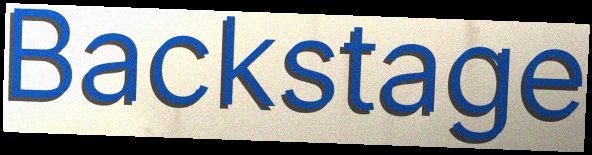
Backstage